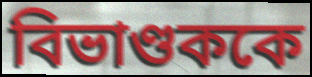
বিভাণ্ডককে